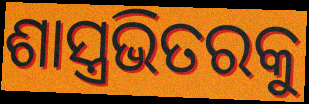
ଶାସ୍ତ୍ରଭିତରକୁ